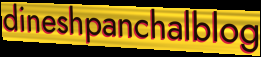
dineshpanchalblog